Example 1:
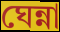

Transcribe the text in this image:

ঘেন্না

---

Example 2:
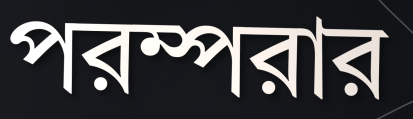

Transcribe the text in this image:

পরম্পরার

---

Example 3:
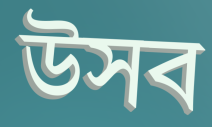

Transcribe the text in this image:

উসব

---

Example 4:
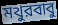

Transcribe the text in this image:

মথুরবাবু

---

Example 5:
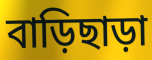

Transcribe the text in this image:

বাড়িছাড়া